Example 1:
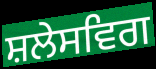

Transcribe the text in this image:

ਸ਼ਲੇਸਵਿਗ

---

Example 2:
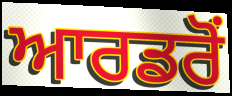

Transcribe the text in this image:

ਆਰਡਰੋਂ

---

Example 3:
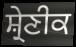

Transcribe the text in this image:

ਸ਼੍ਰੇਣੀਕ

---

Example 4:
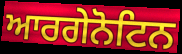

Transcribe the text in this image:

ਆਰਗੇਨੋਟਿਨ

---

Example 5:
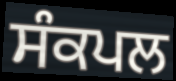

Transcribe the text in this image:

ਸੰਕਪਲ